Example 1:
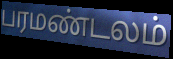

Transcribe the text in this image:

பரமண்டலம்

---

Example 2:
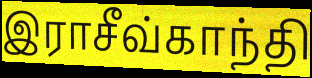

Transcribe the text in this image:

இராசீவ்காந்தி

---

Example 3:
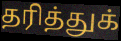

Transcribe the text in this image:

தரித்துக்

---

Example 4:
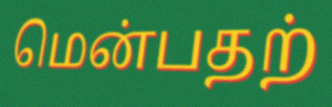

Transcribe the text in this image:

மென்பதற்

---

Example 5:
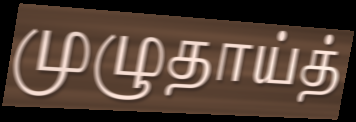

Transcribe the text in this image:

முழுதாய்த்